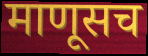
माणूसच